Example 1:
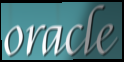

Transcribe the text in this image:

oracle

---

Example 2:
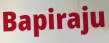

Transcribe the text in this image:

Bapiraju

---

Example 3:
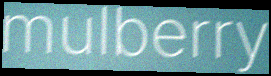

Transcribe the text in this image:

mulberry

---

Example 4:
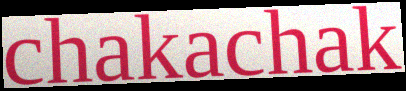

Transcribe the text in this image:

chakachak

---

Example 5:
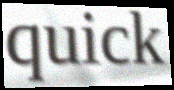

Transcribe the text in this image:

quick